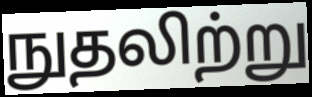
நுதலிற்று